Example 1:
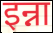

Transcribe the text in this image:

इन्ना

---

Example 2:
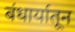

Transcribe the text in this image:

बंधार्यातून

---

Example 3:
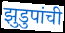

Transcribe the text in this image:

झुडुपांची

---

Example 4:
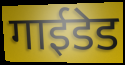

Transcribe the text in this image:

गाईडेड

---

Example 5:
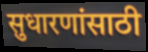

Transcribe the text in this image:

सुधारणांसाठी